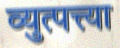
व्युत्पत्त्या